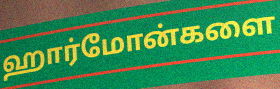
ஹார்மோன்களை